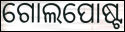
ଗୋଲପୋଷ୍ଟ